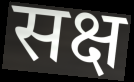
सक्ष